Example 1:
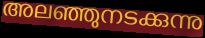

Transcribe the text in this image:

അലഞ്ഞുനടക്കുന്നു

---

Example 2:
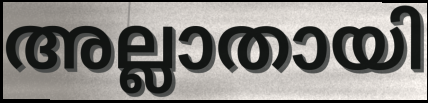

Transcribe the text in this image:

അല്ലാതായി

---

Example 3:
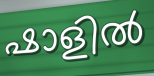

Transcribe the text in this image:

ഷാളിൽ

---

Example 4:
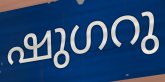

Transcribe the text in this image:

ഷുഗറു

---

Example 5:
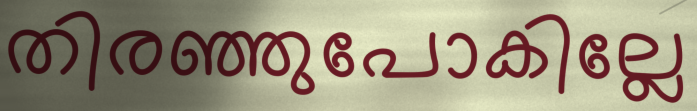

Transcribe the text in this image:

തിരഞ്ഞുപോകില്ലേ